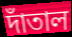
দাঁতাল